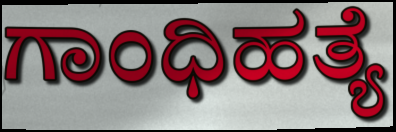
ಗಾಂಧಿಹತ್ಯೆ